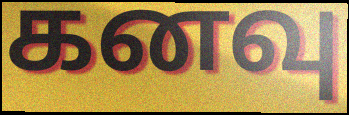
கனவு